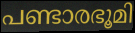
പണ്ടാരഭൂമി